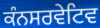
ਕੰਨਸਰਵੇਟਿਵ